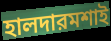
হালদারমশাই